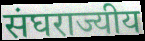
संघराज्यीय